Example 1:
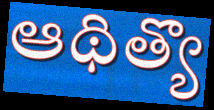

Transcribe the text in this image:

ఆథిత్యొ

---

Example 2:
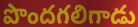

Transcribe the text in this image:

పొందగలిగాడు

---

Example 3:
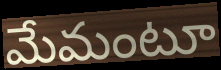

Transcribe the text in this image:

మేమంటూ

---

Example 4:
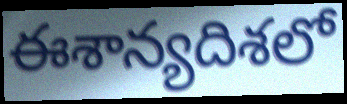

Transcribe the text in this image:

ఈశాన్యదిశలో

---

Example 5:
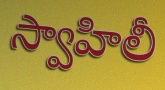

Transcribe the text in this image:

స్వాహిలీ